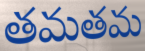
తమతమ